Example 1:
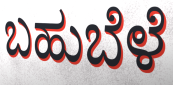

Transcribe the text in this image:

ಬಹುಬೆಳೆ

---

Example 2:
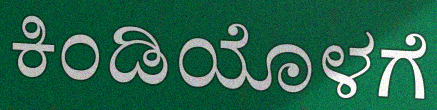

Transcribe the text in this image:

ಕಿಂಡಿಯೊಳಗೆ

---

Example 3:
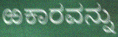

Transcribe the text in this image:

ಱಕಾರವನ್ನು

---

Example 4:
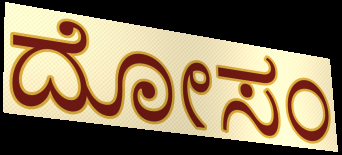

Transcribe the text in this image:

ದೋಸಂ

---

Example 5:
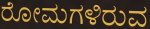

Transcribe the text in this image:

ರೋಮಗಳಿರುವ